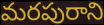
మరపురాని